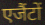
एजैंटों